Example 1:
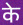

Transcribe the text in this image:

के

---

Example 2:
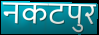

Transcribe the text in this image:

नकटपुर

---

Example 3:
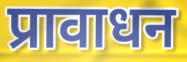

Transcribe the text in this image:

प्रावाधन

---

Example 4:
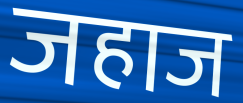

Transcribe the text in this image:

जहाज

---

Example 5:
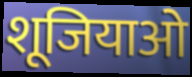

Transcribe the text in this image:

शूजियाओ